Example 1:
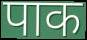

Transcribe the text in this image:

पाक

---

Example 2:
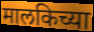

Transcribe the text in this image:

मालकिच्या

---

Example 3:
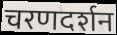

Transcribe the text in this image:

चरणदर्शन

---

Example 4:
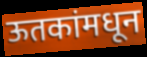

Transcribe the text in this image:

ऊतकांमधून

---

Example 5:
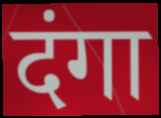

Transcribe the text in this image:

दंगा